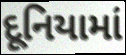
દૂનિયામાં